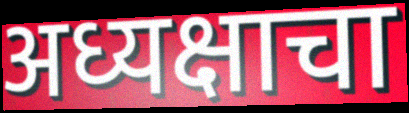
अध्यक्षाचा